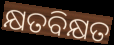
କ୍ଷତବିକ୍ଷତ